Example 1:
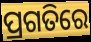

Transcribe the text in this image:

ପ୍ରଗତିରେ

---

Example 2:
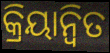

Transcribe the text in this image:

କ୍ରିୟାନ୍ୱିତ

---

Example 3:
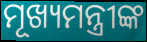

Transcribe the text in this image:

ମୂଖ୍ୟମନ୍ତ୍ରୀଙ୍କ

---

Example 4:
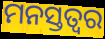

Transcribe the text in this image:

ମନସ୍ତତ୍ଵର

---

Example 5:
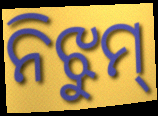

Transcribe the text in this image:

ନିଝୁମ୍